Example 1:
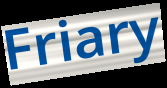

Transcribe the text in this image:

Friary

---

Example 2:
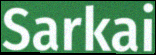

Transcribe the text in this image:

Sarkai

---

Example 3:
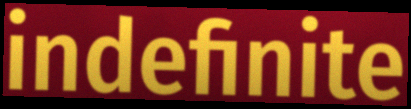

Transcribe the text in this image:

indefinite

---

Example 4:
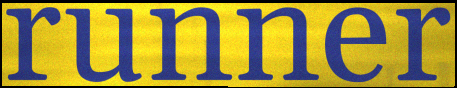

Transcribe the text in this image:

runner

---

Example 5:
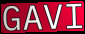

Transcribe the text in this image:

GAVI